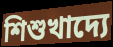
শিশুখাদ্যে